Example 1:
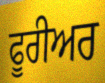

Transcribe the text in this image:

ਫੂਰੀਅਰ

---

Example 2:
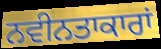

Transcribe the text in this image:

ਨਵੀਨਤਾਕਾਰਾਂ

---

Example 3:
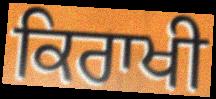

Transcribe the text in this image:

ਕਿਰਾਖੀ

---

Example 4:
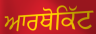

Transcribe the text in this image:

ਆਰਥੋਕਿੱਟ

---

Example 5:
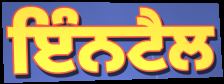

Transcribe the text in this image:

ਇੰਨਟੈਲ